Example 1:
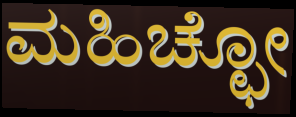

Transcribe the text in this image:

ಮಹಿಚ್ಛೋ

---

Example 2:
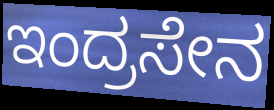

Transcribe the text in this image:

ಇಂದ್ರಸೇನ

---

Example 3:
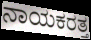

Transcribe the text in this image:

ನಾಯಕರತ್ತ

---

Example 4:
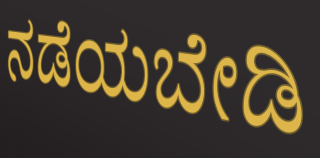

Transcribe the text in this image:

ನಡೆಯಬೇಡಿ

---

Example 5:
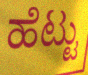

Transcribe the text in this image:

ಹೆಟ್ಟು